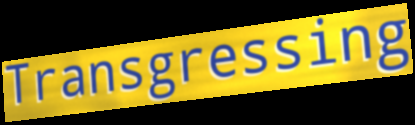
Transgressing